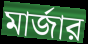
মার্জার